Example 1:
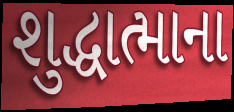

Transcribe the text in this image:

શુદ્ધાત્માના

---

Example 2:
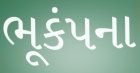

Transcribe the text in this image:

ભૂકંપના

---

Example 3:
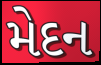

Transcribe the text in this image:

મેદન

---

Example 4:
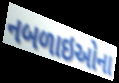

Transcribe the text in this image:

નબળાઇઓના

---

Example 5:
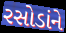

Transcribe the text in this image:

રસોડાંને